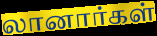
லானார்கள்